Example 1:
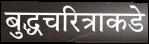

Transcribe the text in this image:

बुद्धचरित्राकडे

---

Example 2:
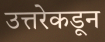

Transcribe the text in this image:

उत्तरेकडून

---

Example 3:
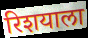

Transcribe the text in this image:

रिशयाला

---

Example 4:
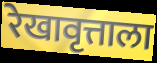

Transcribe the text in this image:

रेखावृत्ताला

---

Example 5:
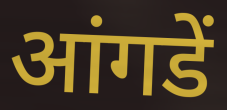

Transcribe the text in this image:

आंगडें